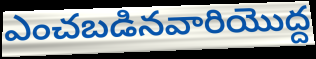
ఎంచబడినవారియొద్ద